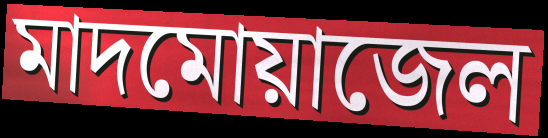
মাদমোয়াজেল